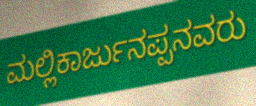
ಮಲ್ಲಿಕಾರ್ಜುನಪ್ಪನವರು